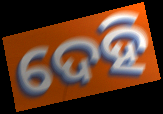
ଦେହି